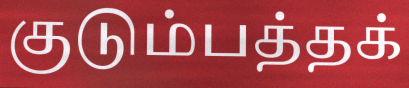
குடும்பத்தக்